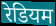
रेडियम